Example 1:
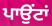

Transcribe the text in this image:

ਪਾਉਂਟਾਂ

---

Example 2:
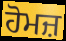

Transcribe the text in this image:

ਹੋਮਜ਼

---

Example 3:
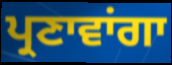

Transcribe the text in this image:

ਪ੍ਰਣਾਵਾਂਗਾ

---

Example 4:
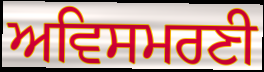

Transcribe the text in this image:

ਅਵਿਸਮਰਣੀ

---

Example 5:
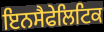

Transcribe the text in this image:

ਇਨਸੈਫੇਲਿਟਿਕ